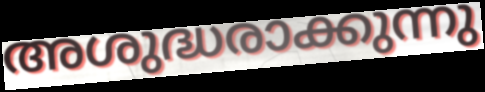
അശുദ്ധരാക്കുന്നു